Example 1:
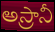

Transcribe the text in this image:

అస్రానీ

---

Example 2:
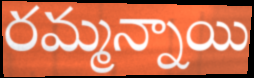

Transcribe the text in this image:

రమ్మన్నాయి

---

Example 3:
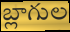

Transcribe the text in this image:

బ్లాగుల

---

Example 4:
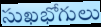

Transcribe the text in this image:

సుఖభోగులు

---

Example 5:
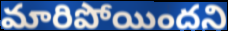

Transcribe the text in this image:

మారిపోయిందని